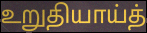
உறுதியாய்த்